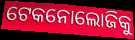
ଟେକନୋଲୋଜିକୁ